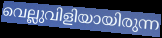
വെല്ലുവിളിയായിരുന്ന